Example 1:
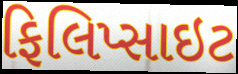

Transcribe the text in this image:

ફિલિપ્સાઇટ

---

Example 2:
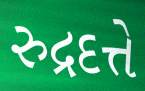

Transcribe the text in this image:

રુદ્રદત્તે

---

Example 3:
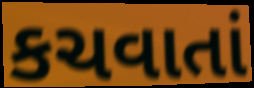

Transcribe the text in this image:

કચવાતાં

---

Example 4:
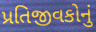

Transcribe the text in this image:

પ્રતિજીવકોનું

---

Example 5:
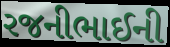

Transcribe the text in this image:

રજનીભાઈની